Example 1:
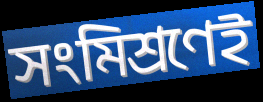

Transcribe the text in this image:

সংমিশ্রণেই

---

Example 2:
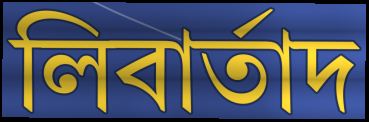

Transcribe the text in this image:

লিবার্তাদ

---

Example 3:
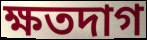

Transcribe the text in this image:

ক্ষতদাগ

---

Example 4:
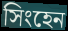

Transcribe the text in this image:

সিংহেন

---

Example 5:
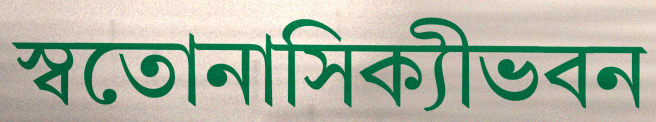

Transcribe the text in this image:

স্বতোনাসিক্যীভবন